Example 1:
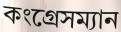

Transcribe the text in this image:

কংগ্রেসম্যান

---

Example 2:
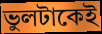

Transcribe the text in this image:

ভুলটাকেই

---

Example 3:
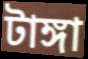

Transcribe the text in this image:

টাঙ্গা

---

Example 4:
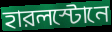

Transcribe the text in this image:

হারলস্টোনে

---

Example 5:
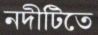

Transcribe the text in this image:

নদীটিতে